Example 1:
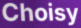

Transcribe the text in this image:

Choisy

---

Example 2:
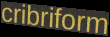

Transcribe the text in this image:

cribriform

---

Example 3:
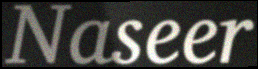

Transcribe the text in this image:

Naseer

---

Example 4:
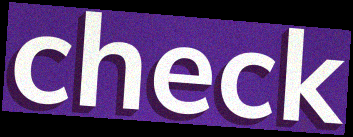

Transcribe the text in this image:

check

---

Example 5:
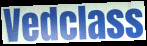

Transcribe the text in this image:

Vedclass